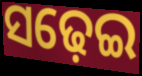
ସଢ଼େଇ